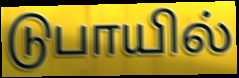
டுபாயில்